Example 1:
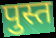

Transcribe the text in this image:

पुस्त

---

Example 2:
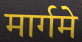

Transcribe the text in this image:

मार्गमे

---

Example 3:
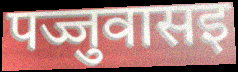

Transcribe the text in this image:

पज्जुवासइ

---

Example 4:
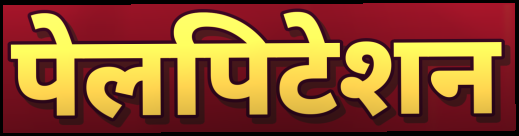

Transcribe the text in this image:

पेलपिटेशन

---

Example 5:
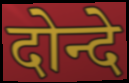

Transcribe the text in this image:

दोन्दे